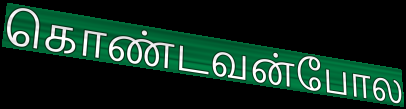
கொண்டவன்போல